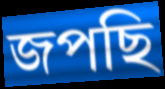
জপছি